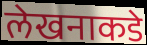
लेखनाकडे